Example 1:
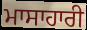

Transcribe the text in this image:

ਮਾਸਾਹਾਰੀ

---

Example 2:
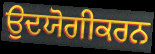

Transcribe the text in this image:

ਉਦਯੋਗੀਕਰਨ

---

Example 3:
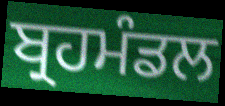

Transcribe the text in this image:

ਬ੍ਰਹਮੰਡਲ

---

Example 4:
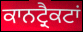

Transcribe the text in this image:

ਕਾਨਟ੍ਰੈਕਟਾਂ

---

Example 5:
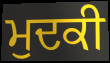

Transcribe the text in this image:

ਮੁਦਕੀ